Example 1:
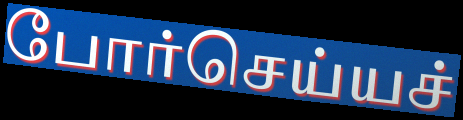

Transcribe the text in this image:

போர்செய்யச்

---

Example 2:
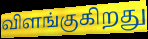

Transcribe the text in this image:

விளங்குகிறது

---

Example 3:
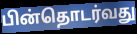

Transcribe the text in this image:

பின்தொடர்வது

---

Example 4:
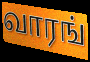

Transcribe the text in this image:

வாரங்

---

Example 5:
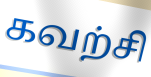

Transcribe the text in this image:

கவற்சி